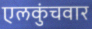
एलकुंचवार